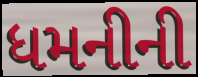
ધમનીની